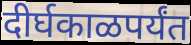
दीर्घकाळपर्यंत